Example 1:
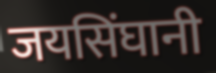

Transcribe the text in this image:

जयसिंघानी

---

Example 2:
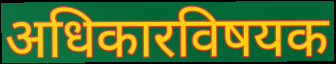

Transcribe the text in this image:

अधिकारविषयक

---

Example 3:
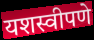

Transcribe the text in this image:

यशस्वीपणे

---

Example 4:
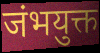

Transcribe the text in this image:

जंभयुक्त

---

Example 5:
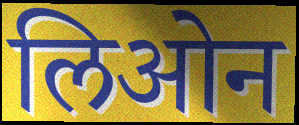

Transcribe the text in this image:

लिओन